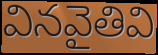
వినవైతివి